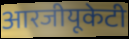
आरजीयूकेटी